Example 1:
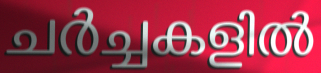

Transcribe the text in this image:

ചർച്ചകളിൽ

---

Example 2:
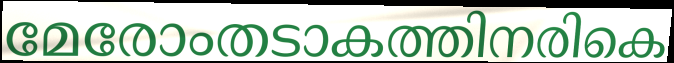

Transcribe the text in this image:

മേരോംതടാകത്തിനരികെ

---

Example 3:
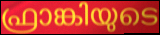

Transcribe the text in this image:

ഫ്രാങ്കിയുടെ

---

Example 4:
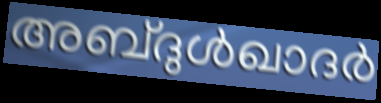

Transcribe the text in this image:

അബ്ദുൾഖാദർ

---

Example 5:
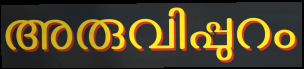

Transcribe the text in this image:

അരുവിപ്പുറം